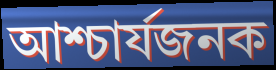
আশ্চার্যজনক